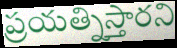
ప్రయత్నిస్తారని